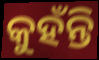
କୁହଁନ୍ତି